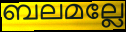
ബലമല്ലേ